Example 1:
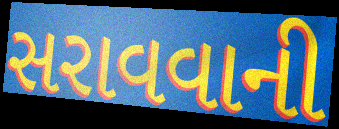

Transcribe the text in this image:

સરાવવાની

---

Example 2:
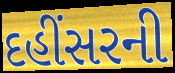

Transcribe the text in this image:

દહીંસરની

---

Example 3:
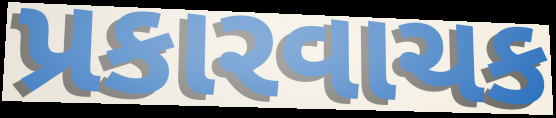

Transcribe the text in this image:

પ્રકારવાચક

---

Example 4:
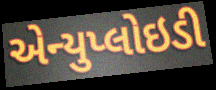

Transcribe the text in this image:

એન્યુપ્લોઇડી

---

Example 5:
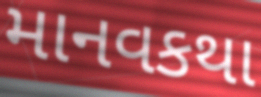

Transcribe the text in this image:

માનવકથા